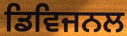
ਡਿਵਿਜਨਲ